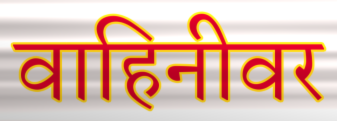
वाहिनीवर